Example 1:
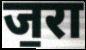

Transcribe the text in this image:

ज॒रा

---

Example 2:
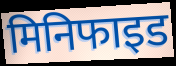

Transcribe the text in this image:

मिनिफाइड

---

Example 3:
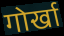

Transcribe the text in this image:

गोर्खा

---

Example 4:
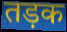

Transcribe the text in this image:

तड़क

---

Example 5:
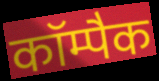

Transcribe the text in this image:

कॉम्पैक